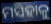
ମସିହାକୁ